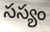
సస్యం